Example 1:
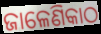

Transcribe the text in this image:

ଜାଳେଣିକାଠ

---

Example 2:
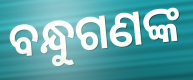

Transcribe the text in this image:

ବନ୍ଧୁଗଣଙ୍କ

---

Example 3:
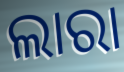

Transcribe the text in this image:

ଲାରା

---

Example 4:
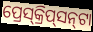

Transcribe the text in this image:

ପ୍ରେସ୍‌କ୍ରିପ୍‌ସନ୍‌ଟା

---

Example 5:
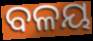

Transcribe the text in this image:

ବଳୟ